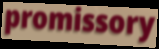
promissory